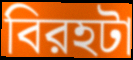
বিরহটা